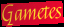
Gametes